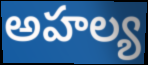
అహల్య